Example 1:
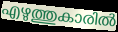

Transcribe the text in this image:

എഴുത്തുകാരിൽ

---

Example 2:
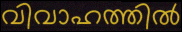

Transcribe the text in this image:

വിവാഹത്തിൽ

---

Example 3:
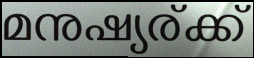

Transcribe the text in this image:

മനുഷ്യര്ക്ക്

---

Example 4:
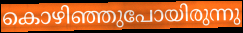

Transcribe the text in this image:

കൊഴിഞ്ഞുപോയിരുന്നു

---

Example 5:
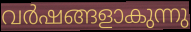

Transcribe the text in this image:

വർഷങ്ങളാകുന്നു